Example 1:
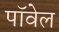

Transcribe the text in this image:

पॉवेल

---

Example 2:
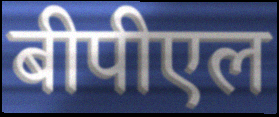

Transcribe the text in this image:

बीपीएल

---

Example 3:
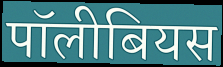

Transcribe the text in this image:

पॉलीबियस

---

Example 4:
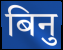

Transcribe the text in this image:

बिनु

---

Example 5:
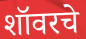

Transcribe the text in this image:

शॉवरचे